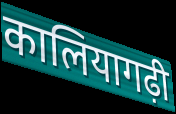
कालियागढ़ी